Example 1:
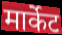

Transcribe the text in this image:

मार्केट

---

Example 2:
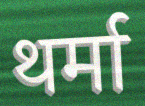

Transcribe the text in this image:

थर्मा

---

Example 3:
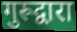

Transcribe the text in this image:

गुरूद्वारा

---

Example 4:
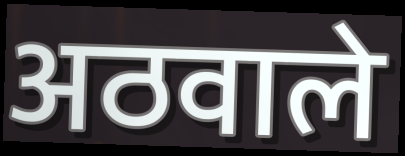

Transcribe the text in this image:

अठवाले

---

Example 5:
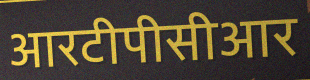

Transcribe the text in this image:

आरटीपीसीआर